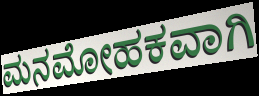
ಮನಮೋಹಕವಾಗಿ